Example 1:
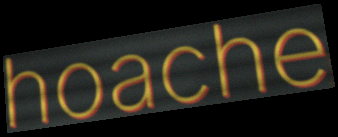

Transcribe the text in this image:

hoache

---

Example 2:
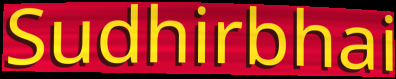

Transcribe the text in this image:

Sudhirbhai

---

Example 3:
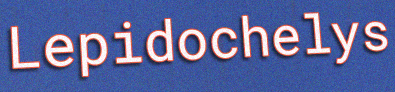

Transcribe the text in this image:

Lepidochelys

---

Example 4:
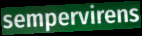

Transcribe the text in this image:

sempervirens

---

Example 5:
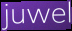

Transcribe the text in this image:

juwel